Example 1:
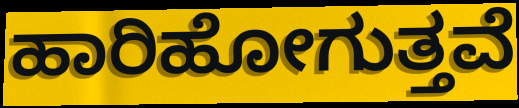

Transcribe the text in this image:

ಹಾರಿಹೋಗುತ್ತವೆ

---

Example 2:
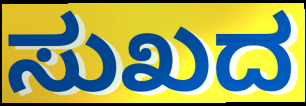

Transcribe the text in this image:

ಸುಖದ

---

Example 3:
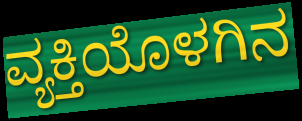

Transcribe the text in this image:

ವ್ಯಕ್ತಿಯೊಳಗಿನ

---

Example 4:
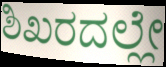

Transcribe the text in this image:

ಶಿಖರದಲ್ಲೇ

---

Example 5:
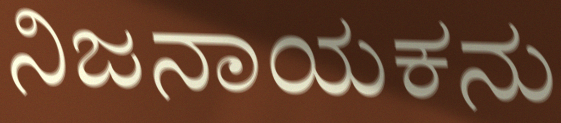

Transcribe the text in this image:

ನಿಜನಾಯಕನು